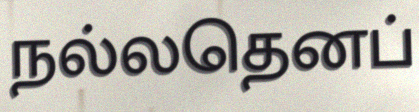
நல்லதெனப்